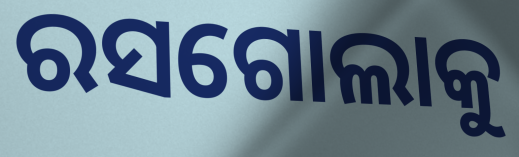
ରସଗୋଲାକୁ